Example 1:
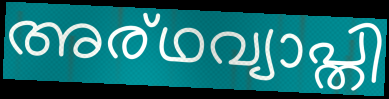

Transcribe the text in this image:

അര്ഥവ്യാപ്തി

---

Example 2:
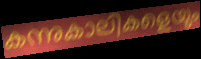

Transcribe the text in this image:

കന്നുകാലികളെയും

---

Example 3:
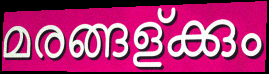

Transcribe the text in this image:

മരങ്ങള്ക്കും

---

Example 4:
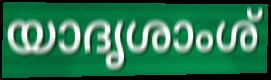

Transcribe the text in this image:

യാദൃശാംശ്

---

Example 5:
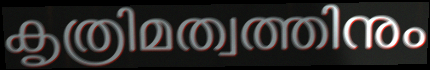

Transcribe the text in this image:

കൃത്രിമത്വത്തിനും